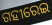
ଗହୀରେଇ